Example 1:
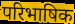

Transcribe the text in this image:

परिभाषिक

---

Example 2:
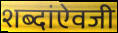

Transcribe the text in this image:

शब्दांऐवजी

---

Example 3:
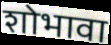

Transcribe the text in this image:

शोभावा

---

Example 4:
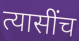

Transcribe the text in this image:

त्यासींच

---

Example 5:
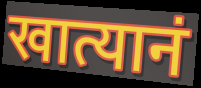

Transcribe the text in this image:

खात्यानं